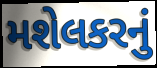
મશેલકરનું